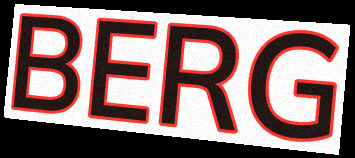
BERG